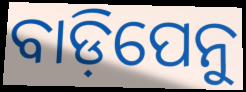
ବାଡ଼ିପେନୁ